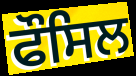
ਫੌਸਿਲ